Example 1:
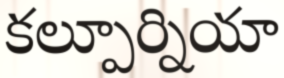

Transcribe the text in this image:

కల్పూర్నియా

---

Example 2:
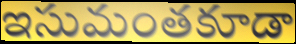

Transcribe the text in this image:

ఇసుమంతకూడా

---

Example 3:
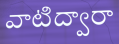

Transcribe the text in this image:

వాటిద్వారా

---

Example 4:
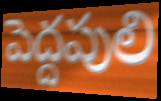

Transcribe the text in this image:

పెద్దపులి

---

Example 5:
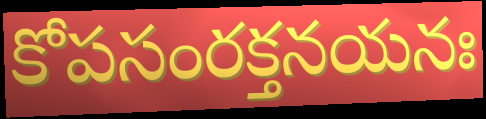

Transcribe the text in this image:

కోపసంరక్తనయనః